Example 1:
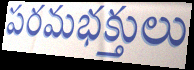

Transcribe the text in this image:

పరమభక్తులు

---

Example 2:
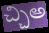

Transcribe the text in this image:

చ్చిఅ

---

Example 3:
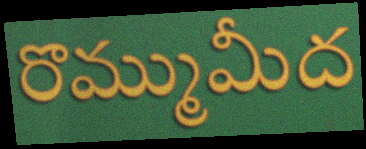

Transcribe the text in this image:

రొమ్ముమీద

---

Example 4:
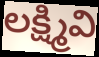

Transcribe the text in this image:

లక్ష్మివి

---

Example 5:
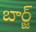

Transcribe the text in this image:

బార్జ్